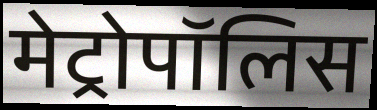
मेट्रोपॉलिस